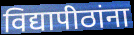
विद्यापीठांना